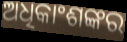
ଅଧିକାଂଶଙ୍କର